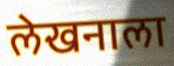
लेखनाला